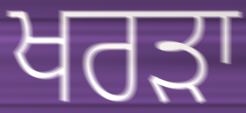
ਖਰੜਾ